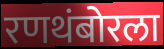
रणथंबोरला